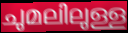
ചുമലിലുള്ള